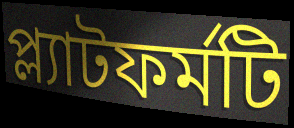
প্ল্যাটফর্মটি